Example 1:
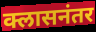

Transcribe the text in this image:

क्लासनंतर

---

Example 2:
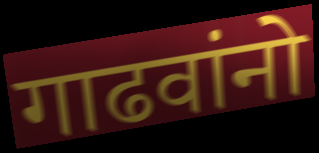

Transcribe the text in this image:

गाढवांनो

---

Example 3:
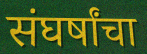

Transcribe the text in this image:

संघर्षांचा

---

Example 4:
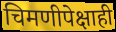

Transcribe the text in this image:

चिमणीपेक्षाही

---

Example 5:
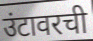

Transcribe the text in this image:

उंटावरची